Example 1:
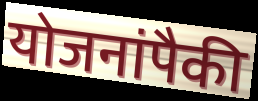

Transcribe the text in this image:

योजनांपैकी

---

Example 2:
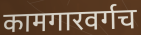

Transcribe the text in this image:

कामगारवर्गच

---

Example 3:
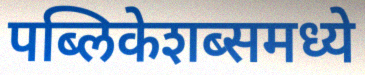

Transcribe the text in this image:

पब्लिकेशब्समध्ये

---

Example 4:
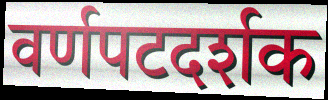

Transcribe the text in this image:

वर्णपटदर्शक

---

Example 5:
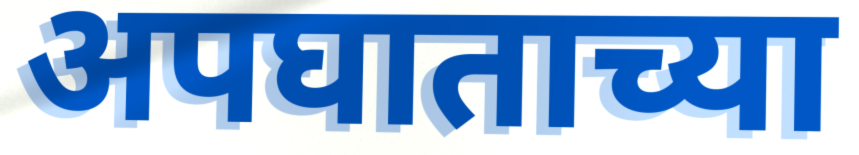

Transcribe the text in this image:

अपघाताच्या